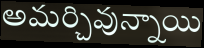
అమర్చివున్నాయి